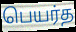
பெயர்த